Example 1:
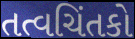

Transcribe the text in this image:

તત્વચિંતકો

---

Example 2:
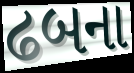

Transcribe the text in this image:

ઢબના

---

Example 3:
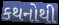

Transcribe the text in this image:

કથનોથી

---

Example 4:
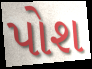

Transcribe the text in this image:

પોશ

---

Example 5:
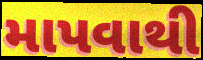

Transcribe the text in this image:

માપવાથી